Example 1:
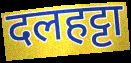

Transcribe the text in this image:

दलहट्टा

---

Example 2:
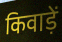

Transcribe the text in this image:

किवाड़ें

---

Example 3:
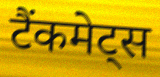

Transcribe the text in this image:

टैंकमेट्स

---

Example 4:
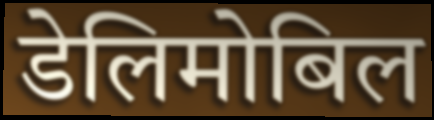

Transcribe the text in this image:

डेलिमोबिल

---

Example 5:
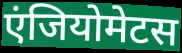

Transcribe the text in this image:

एंजियोमेटस